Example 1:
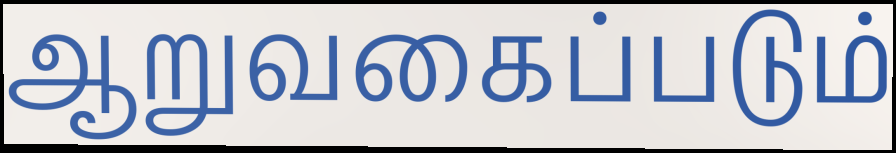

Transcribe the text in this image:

ஆறுவகைப்படும்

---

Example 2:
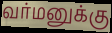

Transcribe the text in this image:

வர்மனுக்கு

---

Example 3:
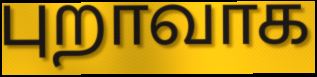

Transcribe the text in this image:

புறாவாக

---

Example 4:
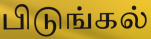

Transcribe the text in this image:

பிடுங்கல்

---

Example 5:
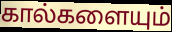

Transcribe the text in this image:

கால்களையும்